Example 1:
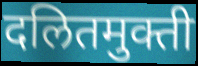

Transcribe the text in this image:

दलितमुक्ती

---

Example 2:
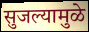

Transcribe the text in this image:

सुजल्यामुळे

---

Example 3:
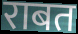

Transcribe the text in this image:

राबत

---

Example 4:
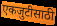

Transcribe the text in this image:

एकजुटीसाठी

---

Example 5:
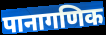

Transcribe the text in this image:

पानागणिक